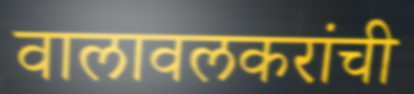
वालावलकरांची